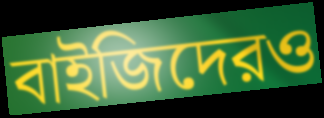
বাইজিদেরও